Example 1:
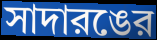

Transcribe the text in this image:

সাদারঙের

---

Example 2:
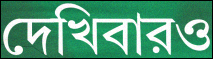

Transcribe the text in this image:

দেখিবারও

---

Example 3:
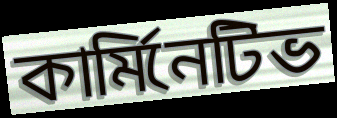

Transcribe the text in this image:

কার্মিনেটিভ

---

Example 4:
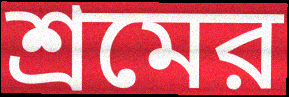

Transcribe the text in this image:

শ্রমের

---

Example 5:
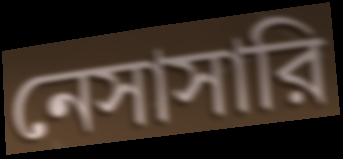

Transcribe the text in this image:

নেসাসারি